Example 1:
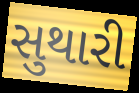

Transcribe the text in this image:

સુથારી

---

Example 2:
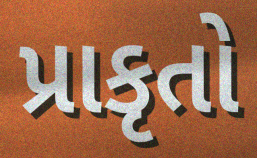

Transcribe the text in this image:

પ્રાકૃતો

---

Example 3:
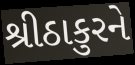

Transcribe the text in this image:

શ્રીઠાકુરને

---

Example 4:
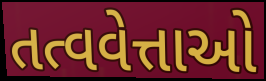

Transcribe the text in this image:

તત્વવેત્તાઓ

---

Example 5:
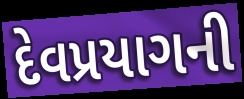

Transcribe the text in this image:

દેવપ્રયાગની